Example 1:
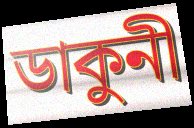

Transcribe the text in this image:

ডাকুনী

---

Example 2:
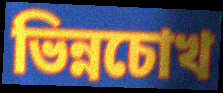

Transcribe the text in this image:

ভিন্নচোখ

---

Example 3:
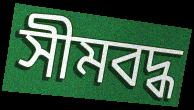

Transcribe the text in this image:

সীমবদ্ধ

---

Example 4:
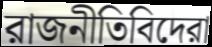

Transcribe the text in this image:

রাজনীতিবিদেরা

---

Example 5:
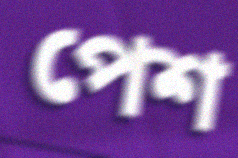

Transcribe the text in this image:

পেশ